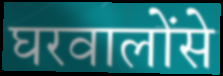
घरवालोंसे